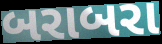
બરાબરા